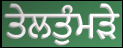
ਤੇਲਤੁੰਮੜੇ